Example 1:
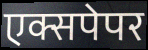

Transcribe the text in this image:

एक्सपेपर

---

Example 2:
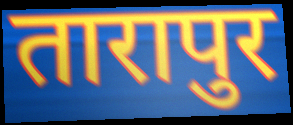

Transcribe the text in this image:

तारापुर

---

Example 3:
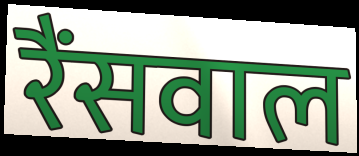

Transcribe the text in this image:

रैंसवाल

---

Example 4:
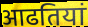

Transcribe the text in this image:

आढतियां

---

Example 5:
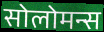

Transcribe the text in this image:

सोलोमन्स